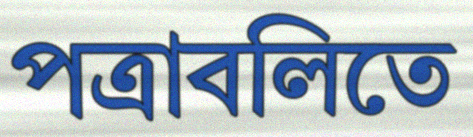
পত্রাবলিতে